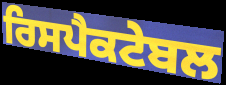
ਰਿਸਪੈਕਟੇਬਲ